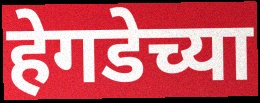
हेगडेच्या